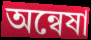
অন্বেষা